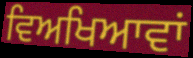
ਵਿਅਖਿਆਵਾਂ